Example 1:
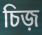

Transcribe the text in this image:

চিজ়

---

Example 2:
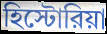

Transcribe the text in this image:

হিস্টোরিয়া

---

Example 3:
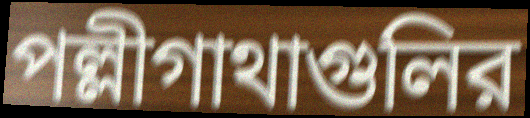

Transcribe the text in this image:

পল্লীগাথাগুলির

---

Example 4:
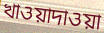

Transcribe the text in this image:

খাওয়াদাওয়া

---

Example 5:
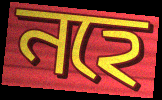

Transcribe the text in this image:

নহে